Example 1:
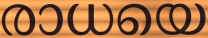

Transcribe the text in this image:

രാധയെ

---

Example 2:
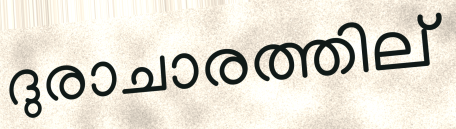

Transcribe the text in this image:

ദുരാചാരത്തില്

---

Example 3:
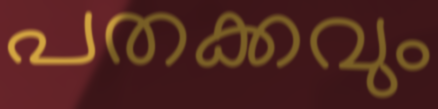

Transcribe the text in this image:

പതക്കവും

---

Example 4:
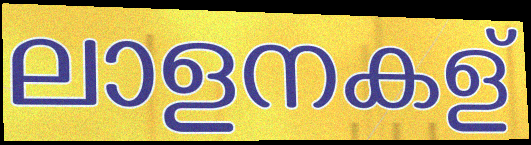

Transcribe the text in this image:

ലാളനകള്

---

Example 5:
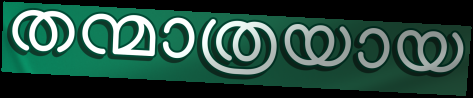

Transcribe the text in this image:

തന്മാത്രയായ